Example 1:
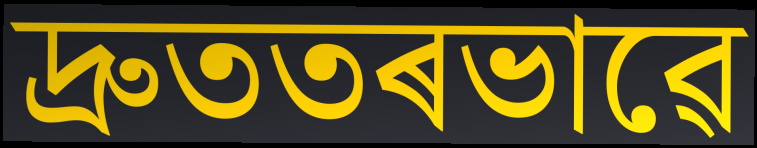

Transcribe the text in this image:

দ্ৰুততৰভাৱে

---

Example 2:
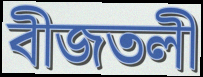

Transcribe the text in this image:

বীজতলী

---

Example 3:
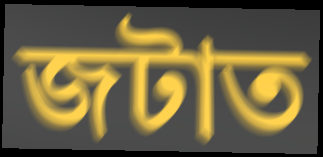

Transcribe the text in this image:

জটাত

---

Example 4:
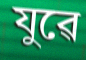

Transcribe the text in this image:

যুৱে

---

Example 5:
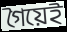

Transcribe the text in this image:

গৈয়েই